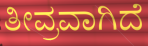
ತೀವ್ರವಾಗಿದೆ